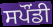
ਸਪੌਂਡੀ